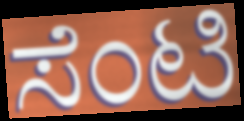
ಸೆಂಟಿ